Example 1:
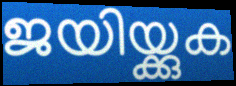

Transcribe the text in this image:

ജയിയ്ക്കുക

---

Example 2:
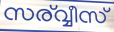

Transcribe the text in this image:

സര്വ്വീസ്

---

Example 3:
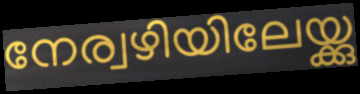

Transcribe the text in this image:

നേര്വഴിയിലേയ്ക്കു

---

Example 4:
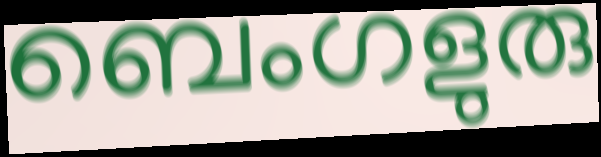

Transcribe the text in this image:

ബെംഗളുരു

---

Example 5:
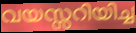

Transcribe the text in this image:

വയസ്സറിയിച്ച